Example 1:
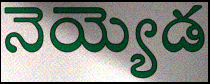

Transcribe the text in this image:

నెయ్యెడ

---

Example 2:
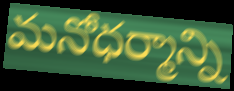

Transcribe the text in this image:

మనోధర్మాన్ని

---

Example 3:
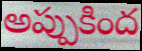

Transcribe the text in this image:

అప్పుకింద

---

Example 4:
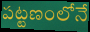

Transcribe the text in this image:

పట్టణంలోనే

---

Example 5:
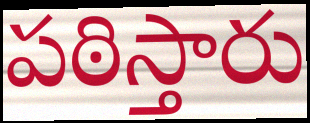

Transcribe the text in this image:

పఠిస్తారు